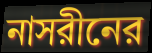
নাসরীনের